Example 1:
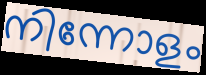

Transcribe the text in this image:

നിന്നോളം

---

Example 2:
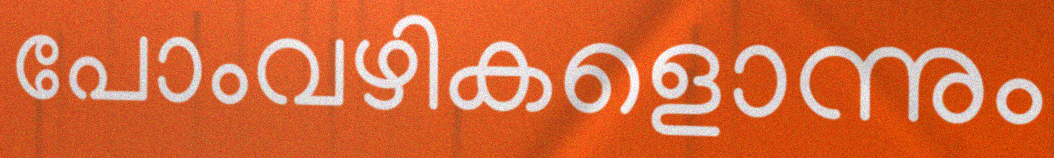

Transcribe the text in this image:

പോംവഴികളൊന്നും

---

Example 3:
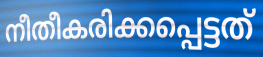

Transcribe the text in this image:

നീതീകരിക്കപ്പെട്ടത്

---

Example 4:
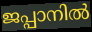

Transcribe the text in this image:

ജപ്പാനിൽ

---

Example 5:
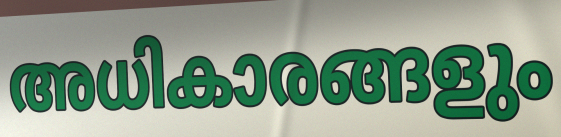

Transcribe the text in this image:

അധികാരങ്ങളും